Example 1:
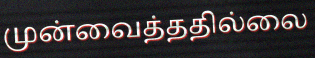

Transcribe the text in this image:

முன்வைத்ததில்லை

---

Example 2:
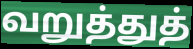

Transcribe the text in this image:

வறுத்துத்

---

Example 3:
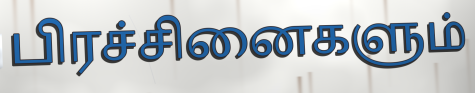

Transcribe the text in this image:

பிரச்சினைகளும்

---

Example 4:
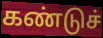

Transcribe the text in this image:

கண்டுச்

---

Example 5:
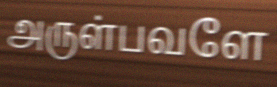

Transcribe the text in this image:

அருள்பவளே